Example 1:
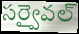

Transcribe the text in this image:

సర్వైవల్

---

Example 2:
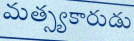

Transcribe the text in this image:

మత్స్యకారుడు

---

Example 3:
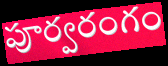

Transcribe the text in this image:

పూర్వరంగం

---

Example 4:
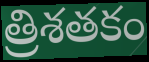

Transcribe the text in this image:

త్రిశతకం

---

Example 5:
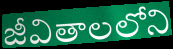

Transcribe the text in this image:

జీవితాలలోని